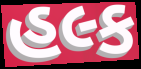
હલ્ક